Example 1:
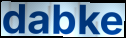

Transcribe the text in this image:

dabke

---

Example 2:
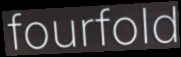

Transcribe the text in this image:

fourfold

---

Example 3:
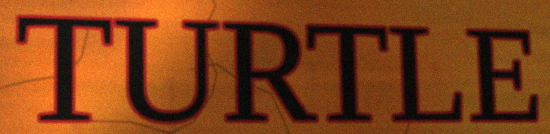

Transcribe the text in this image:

TURTLE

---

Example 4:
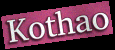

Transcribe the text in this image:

Kothao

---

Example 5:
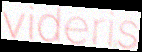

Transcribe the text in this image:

videris